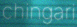
chingari